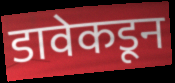
डावेकडून